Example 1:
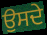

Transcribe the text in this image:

ਉਸਦੇ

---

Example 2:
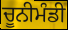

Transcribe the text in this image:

ਚੂਨੀਮੰਡੀ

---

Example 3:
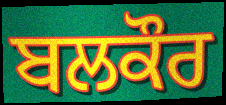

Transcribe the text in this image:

ਬਲਕੌਰ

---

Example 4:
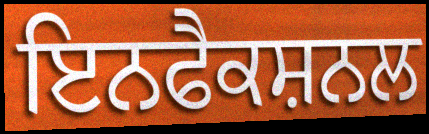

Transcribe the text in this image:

ਇਨਫੈਕਸ਼ਨਲ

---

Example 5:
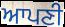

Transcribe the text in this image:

ਆਪਣੀ